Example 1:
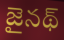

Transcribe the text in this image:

జైనథ్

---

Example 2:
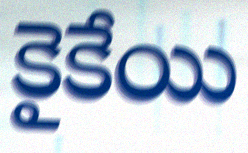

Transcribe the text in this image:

కైకేయి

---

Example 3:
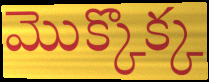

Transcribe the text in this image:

మొక్కొక్క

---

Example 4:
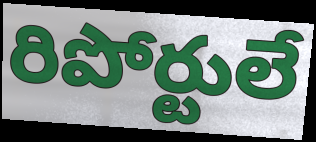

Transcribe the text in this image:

రిపోర్టులే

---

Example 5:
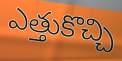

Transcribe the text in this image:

ఎత్తుకొచ్చి